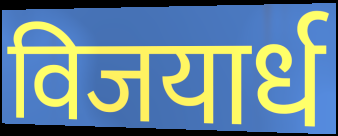
विजयार्ध